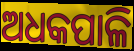
ଅଧକପାଳି